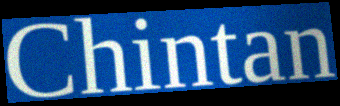
Chintan